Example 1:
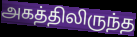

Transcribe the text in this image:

அகத்திலிருந்த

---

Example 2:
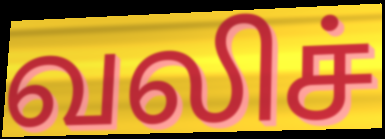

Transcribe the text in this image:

வலிச்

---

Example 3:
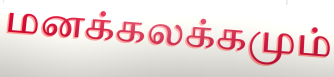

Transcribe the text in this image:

மனக்கலக்கமும்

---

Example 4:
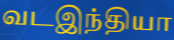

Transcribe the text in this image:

வடஇந்தியா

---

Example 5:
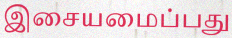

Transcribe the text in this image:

இசையமைப்பது